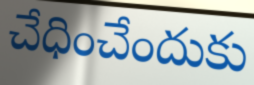
చేధించేందుకు